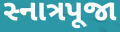
સ્નાત્રપૂજા